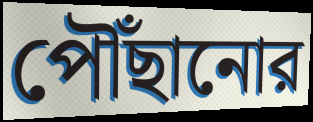
পৌঁছানোর